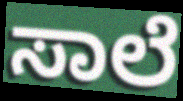
ಸಾಲೆ